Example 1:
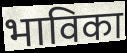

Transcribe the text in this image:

भाविका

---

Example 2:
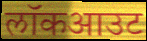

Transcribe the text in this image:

लॉकआउट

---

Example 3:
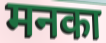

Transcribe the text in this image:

मनका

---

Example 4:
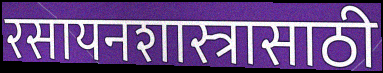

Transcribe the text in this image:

रसायनशास्त्रासाठी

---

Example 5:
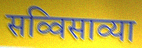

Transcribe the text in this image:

सव्विसाव्या